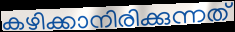
കഴിക്കാനിരിക്കുന്നത്